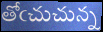
తోఁచుచున్న